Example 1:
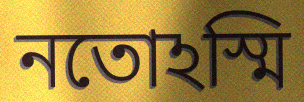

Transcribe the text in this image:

নতোঽস্মি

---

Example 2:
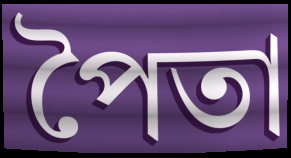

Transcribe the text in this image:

পৈতা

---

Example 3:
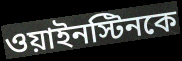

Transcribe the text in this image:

ওয়াইনস্টিনকে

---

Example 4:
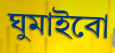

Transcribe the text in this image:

ঘুমাইবো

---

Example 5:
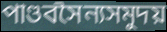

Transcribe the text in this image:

পাণ্ডবসৈন্যসমুদয়